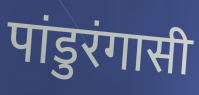
पांडुरंगासी